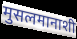
मुसलमानाशी